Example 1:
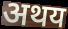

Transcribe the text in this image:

अथय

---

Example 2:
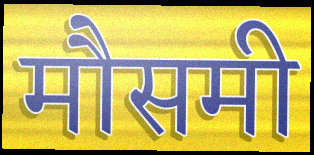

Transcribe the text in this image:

मौसमी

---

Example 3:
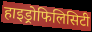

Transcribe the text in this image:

हाइड्रोफिलिसिटी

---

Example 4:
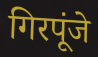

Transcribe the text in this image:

गिरपूंजे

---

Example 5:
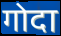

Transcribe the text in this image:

गोदा